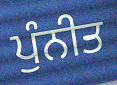
ਪੁੰਨੀਤ